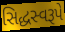
સિદ્ધસ્વરૂપે